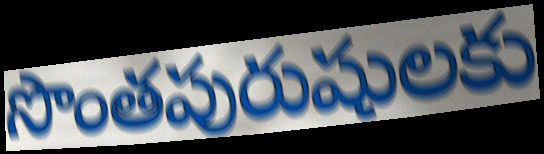
సొంతపురుషులకు